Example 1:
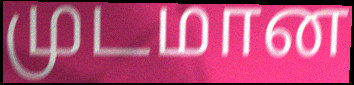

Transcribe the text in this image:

முடமான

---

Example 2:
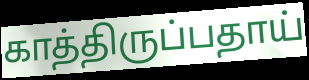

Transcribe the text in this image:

காத்திருப்பதாய்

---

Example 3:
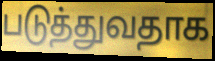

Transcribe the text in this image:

படுத்துவதாக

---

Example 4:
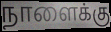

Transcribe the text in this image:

நாளைக்கு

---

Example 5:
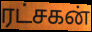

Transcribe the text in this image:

ரட்சகன்